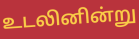
உடலினின்று